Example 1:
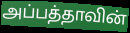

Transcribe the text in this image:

அப்பத்தாவின்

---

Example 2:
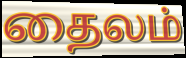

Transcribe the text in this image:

தைலம்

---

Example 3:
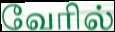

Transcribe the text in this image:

வேரில்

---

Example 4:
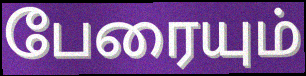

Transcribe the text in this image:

பேரையும்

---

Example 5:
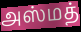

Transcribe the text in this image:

அஸ்மத்